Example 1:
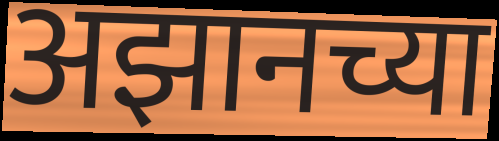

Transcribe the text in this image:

अझानच्या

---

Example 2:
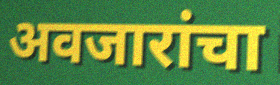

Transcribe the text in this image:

अवजारांचा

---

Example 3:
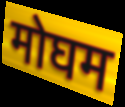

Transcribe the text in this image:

मोघम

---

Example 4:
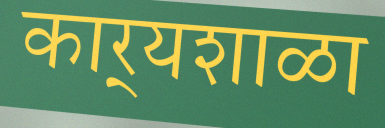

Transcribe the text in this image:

कार्यशाळा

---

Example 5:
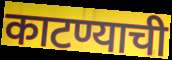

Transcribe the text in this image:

काटण्याची